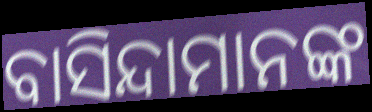
ବାସିନ୍ଦାମାନଙ୍କ